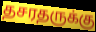
தசரதருக்கு